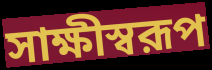
সাক্ষীস্বরূপ